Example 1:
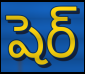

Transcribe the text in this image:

షెర్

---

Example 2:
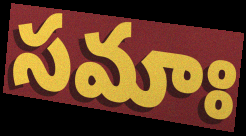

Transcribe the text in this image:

సమాః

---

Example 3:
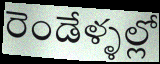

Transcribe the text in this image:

రెండేళ్ళల్లో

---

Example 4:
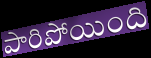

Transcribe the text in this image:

పారిపోయింది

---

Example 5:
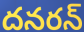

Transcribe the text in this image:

దనరన్